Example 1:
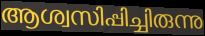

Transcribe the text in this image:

ആശ്വസിപ്പിച്ചിരുന്നു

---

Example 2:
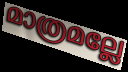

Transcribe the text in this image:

മാത്രമല്ലേ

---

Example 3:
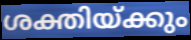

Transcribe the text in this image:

ശക്തിയ്ക്കും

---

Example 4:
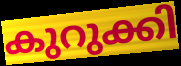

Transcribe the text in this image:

കുറുക്കി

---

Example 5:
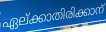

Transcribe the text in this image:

ഏല്ക്കാതിരിക്കാന്